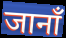
जानाँ